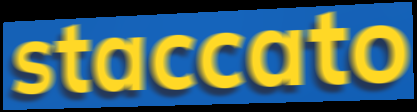
staccato